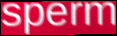
sperm